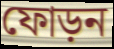
ফোড়ন